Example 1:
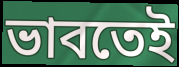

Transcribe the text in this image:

ভাবতেই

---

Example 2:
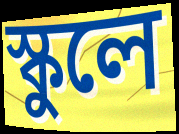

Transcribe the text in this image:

স্কুলে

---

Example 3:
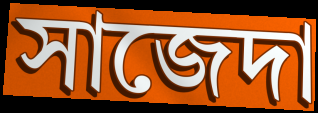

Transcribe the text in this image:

সাজেদা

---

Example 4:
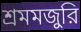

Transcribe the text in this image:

শ্রমমজুরি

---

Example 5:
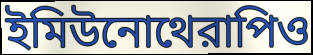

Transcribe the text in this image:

ইমিউনোথেরাপিও